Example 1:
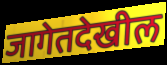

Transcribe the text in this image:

जागेतदेखील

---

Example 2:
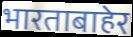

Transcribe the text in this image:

भारताबाहेर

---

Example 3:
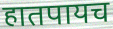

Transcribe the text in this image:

हातपायच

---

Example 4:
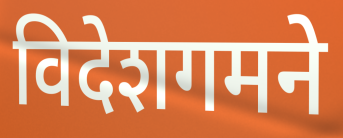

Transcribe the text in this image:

विदेशगमने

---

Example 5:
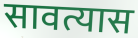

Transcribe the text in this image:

सावत्यास